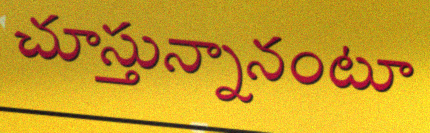
చూస్తున్నానంటూ